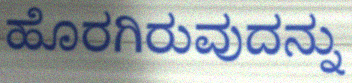
ಹೊರಗಿರುವುದನ್ನು